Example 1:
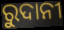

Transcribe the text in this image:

ରୁଦାନୀ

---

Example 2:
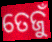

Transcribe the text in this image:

ତେଜୁଁ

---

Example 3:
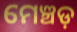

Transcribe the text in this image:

ମେଞ୍ଚଡ଼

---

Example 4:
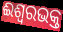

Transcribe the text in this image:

ଈଶ୍ୱରଭକ୍ତ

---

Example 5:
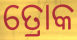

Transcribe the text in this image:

ତ୍ରୋକ